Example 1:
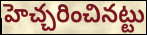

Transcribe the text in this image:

హెచ్చరించినట్టు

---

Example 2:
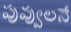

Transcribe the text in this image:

పువ్వులనే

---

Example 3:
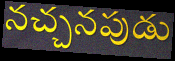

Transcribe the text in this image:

నచ్చనపుడు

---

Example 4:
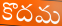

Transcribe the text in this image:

కొదమ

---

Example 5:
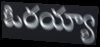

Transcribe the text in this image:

ఓరయ్యా